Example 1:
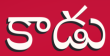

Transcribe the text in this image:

కాడు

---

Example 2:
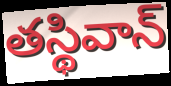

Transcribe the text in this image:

తస్థివాన్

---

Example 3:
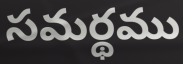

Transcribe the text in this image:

సమర్థము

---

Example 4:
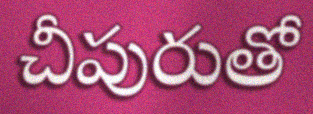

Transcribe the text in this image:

చీపురుతో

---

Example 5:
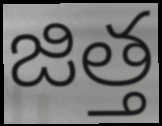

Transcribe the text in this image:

జిత్త